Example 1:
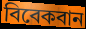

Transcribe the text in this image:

বিবেকবান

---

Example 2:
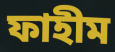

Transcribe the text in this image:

ফাহীম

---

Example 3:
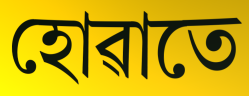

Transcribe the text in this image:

হোৱাতে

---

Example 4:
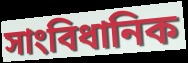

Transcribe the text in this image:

সাংবিধানিক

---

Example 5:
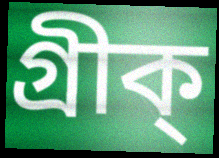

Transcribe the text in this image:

গ্ৰীক্